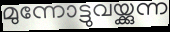
മുന്നോട്ടുവയ്ക്കുന്ന